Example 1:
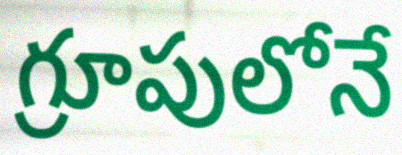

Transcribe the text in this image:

గ్రూపులోనే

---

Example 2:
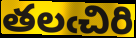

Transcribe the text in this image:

తలఁచిరి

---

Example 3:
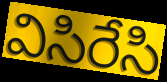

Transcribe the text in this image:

విసిరేసి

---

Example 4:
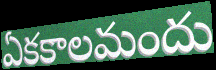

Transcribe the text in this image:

ఏకకాలమందు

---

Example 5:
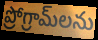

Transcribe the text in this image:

ప్రోగ్రామ్‌లను